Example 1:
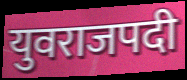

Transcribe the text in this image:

युवराजपदी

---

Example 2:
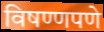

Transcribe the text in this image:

विषण्णपणे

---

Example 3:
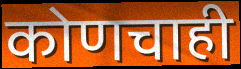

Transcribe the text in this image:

कोणचाही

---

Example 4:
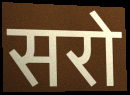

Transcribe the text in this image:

सरो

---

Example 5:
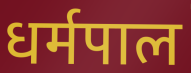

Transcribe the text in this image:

धर्मपाल